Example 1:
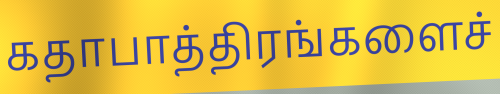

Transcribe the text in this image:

கதாபாத்திரங்களைச்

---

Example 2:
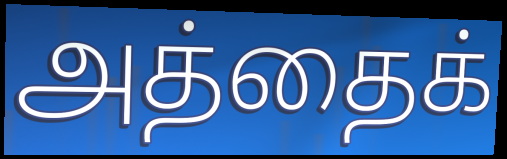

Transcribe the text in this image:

அத்தைக்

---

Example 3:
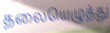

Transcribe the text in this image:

தலையெழுத்து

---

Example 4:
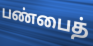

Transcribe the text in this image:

பண்பைத்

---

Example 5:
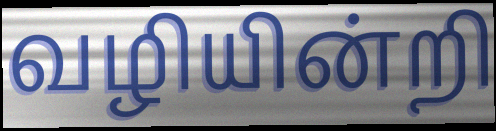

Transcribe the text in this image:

வழியின்றி